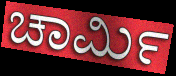
ಚಾರ್ಮಿ